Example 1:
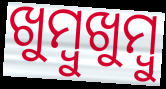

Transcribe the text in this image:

ଖୁମ୍ୱୁଖୁମ୍ବୁ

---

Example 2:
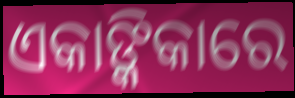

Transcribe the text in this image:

ଏକାଙ୍କିକାରେ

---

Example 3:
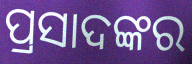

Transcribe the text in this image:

ପ୍ରସାଦଙ୍କର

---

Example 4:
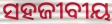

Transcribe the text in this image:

ସହଜୀବୀୟ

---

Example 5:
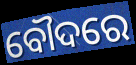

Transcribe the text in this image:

ବୌଦରେ